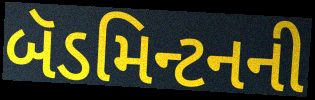
બૅડમિન્ટનની